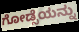
ಗೋಡ್ಸೆಯನ್ನು